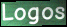
Logos